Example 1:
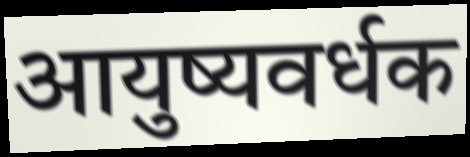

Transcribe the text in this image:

आयुष्यवर्धक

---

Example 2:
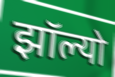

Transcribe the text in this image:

झॉल्यो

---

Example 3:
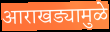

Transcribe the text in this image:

आराखड्यामुळे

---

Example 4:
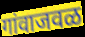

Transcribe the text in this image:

गांवाजवळ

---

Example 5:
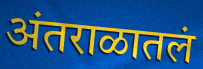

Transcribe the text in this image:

अंतराळातलं